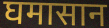
घमासान